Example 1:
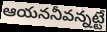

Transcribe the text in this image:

ఆయననీవన్నట్టే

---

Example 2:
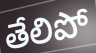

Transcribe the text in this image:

తేలిపో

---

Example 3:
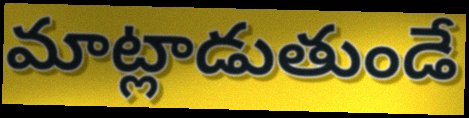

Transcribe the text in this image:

మాట్లాడుతుండే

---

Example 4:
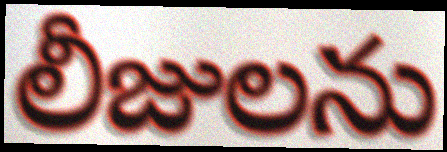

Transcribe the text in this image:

లీజులను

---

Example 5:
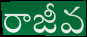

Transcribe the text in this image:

రాజీవ